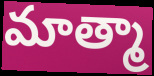
మాత్మా